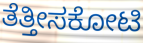
ತೆತ್ತೀಸಕೋಟಿ